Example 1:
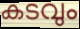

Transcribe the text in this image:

കടവും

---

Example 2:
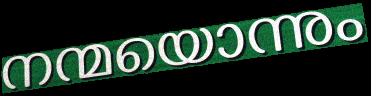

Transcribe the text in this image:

നന്മയൊന്നും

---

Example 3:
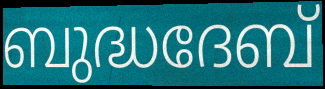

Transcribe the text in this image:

ബുദ്ധദേബ്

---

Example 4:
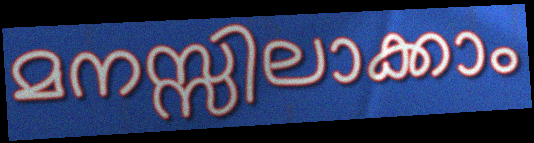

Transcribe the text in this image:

മനസ്സിലാക്കാം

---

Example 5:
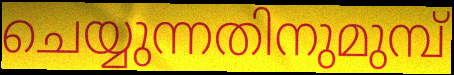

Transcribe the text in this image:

ചെയ്യുന്നതിനുമുമ്പ്